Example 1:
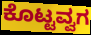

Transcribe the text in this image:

ಕೊಟ್ಟವ್ವಗ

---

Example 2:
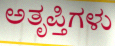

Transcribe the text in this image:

ಅತೃಪ್ತಿಗಳು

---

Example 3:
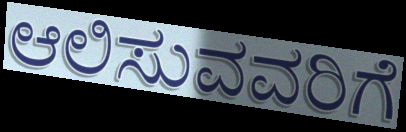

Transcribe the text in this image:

ಆಲಿಸುವವರಿಗೆ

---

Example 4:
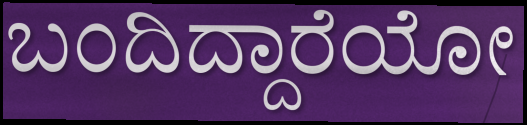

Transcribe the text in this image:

ಬಂದಿದ್ದಾರೆಯೋ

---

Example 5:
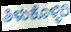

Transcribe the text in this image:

ತಿಳುಕೊಳ್ಳಿರಿ